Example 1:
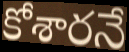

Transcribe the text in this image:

కోశారనే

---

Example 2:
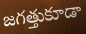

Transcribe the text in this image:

జగత్తుకూడా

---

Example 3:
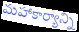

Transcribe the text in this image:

మహాకార్యాన్ని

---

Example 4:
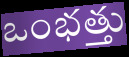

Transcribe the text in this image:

ఒంభత్తు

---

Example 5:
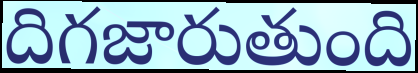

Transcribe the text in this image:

దిగజారుతుంది